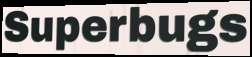
Superbugs